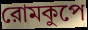
রোমকুপে